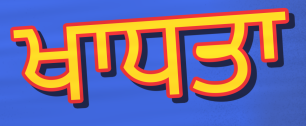
ਖਾਧਤਾ